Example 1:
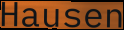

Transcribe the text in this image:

Hausen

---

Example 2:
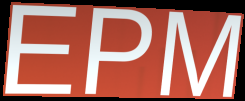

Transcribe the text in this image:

EPM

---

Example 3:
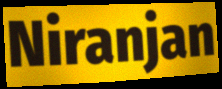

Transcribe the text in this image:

Niranjan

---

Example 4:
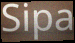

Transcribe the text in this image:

Sipa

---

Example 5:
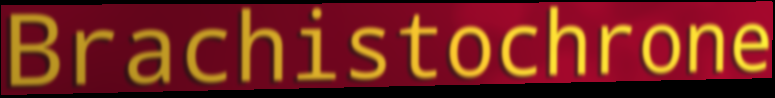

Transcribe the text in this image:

Brachistochrone